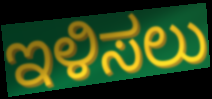
ಇಳಿಸಲು